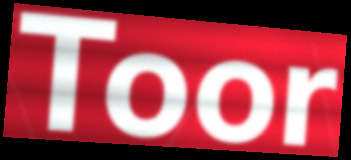
Toor